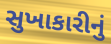
સુખાકારીનું